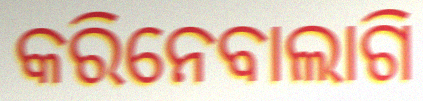
କରିନେବାଲାଗି